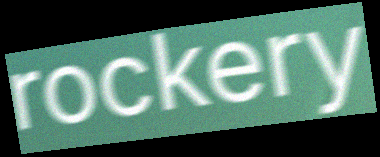
rockery